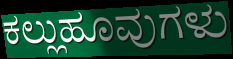
ಕಲ್ಲುಹೂವುಗಳು